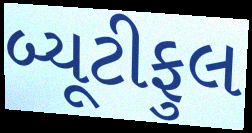
બ્યૂટીફુલ